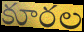
కూరల